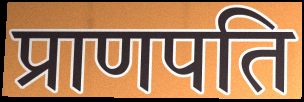
प्राणपति